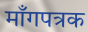
माँगपत्रक